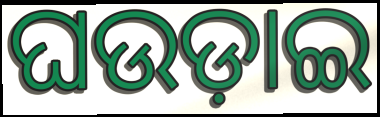
ଘଉଡ଼ାଇ